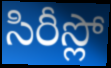
సిరీస్లో